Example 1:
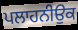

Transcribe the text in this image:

ਪਲਾਹਨੀਉਕ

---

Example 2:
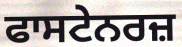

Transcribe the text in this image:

ਫਾਸਟੇਨਰਜ਼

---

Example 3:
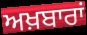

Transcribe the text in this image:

ਅਖ਼ਬਾਰਾਂ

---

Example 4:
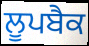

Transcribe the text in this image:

ਲੂਪਬੈਕ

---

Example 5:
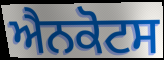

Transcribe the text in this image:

ਐਨਕੋਟਸ